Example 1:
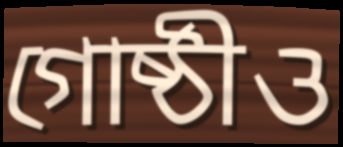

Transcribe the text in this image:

গোষ্ঠীও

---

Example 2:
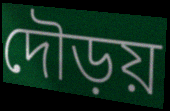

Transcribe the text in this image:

দৌড়য়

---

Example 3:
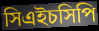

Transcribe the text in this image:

সিএইচসিপি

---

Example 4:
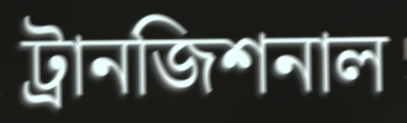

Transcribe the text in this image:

ট্রানজিশনাল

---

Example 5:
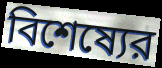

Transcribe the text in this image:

বিশেষ্যের